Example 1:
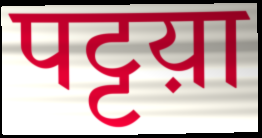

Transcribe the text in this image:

पट्टय़ा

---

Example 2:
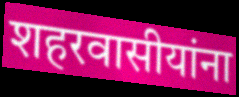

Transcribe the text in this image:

शहरवासीयांना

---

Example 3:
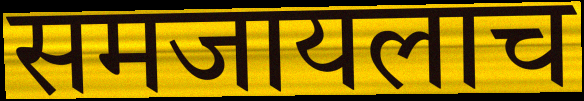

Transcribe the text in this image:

समजायलाच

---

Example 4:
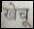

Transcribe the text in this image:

खेचू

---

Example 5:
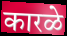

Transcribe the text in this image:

कारळे